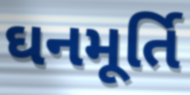
ઘનમૂર્તિ